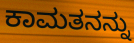
ಕಾಮತನನ್ನು